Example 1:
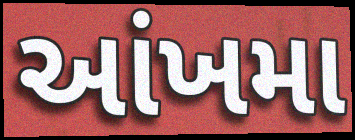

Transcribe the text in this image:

આંખમા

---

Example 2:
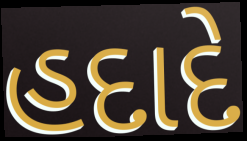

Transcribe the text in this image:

હદાદે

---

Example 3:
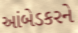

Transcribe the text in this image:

આંબેડકરને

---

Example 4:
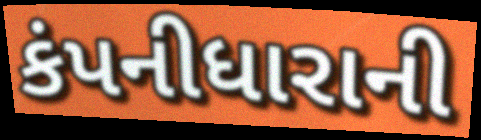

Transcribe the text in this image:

કંપનીધારાની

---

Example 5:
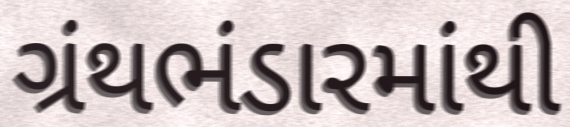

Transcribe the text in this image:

ગ્રંથભંડારમાંથી